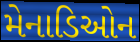
મેનાડિઓન